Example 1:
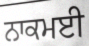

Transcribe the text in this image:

ਨਾਕਮਈ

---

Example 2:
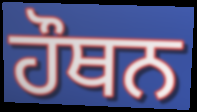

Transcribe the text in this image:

ਹੌਥਨ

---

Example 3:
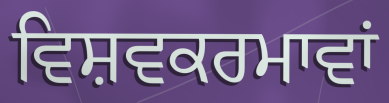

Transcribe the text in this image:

ਵਿਸ਼ਵਕਰਮਾਵਾਂ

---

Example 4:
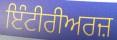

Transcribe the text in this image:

ਇੰਟੀਰੀਅਰਜ਼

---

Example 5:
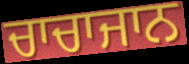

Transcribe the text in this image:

ਚਾਚਾਜਾਨ